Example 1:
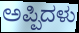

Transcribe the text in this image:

ಅಪ್ಪಿದಳು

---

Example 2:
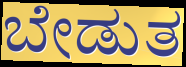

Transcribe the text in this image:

ಬೇಡುತ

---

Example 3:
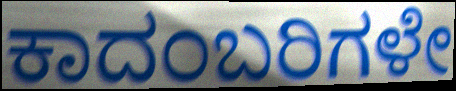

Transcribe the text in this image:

ಕಾದಂಬರಿಗಳೇ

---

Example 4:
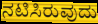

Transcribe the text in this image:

ನಟಿಸಿರುವುದು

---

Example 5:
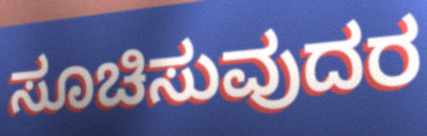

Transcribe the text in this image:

ಸೂಚಿಸುವುದರ